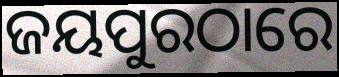
ଜୟପୁରଠାରେ